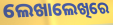
ଲେଖାଲେଖିରେ